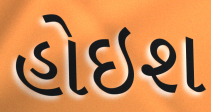
હોઇશ